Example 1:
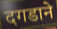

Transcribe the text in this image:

दगडाने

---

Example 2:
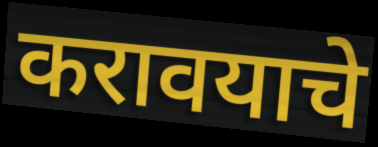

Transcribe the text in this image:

करावयाचे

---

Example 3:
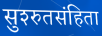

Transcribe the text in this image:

सुश्रुतसंहिता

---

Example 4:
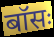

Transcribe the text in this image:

बॉसः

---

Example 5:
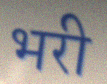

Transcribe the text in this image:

भरी